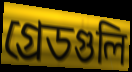
গ্রেডগুলি